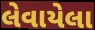
લેવાયેલા